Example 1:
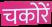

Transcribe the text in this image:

चकोरें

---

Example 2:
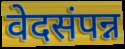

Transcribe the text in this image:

वेदसंपन्न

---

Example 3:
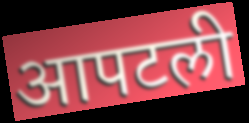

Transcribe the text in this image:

आपटली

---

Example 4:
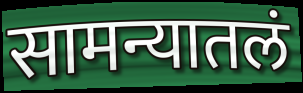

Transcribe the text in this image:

सामन्यातलं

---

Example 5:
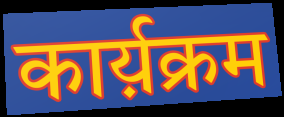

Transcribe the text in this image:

कार्य़क्रम